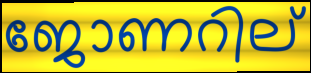
ജോണറില്